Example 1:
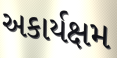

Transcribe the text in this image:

અકાર્યક્ષમ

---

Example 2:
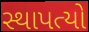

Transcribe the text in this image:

સ્થાપત્યો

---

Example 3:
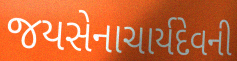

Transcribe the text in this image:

જયસેનાચાર્યદેવની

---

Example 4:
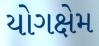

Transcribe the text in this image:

યોગક્ષેમ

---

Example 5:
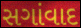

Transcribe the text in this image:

સગાંવાદ